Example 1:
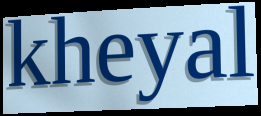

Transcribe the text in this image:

kheyal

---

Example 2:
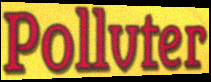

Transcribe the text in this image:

Polluter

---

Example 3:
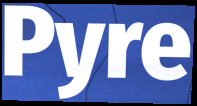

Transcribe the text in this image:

Pyre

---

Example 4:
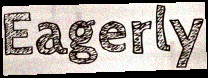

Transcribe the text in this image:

Eagerly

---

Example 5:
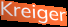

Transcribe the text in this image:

Kreiger